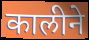
कालीने